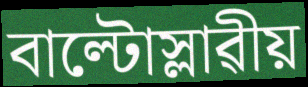
বাল্টোস্লাৱীয়